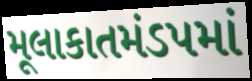
મૂલાકાતમંડપમાં